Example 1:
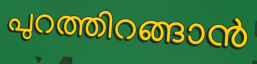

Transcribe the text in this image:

പുറത്തിറങ്ങാൻ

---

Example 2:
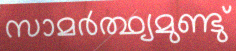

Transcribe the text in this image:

സാമർത്ഥ്യമുണ്ടു്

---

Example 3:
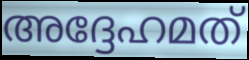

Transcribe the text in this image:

അദ്ദേഹമത്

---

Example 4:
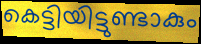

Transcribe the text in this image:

കെട്ടിയിട്ടുണ്ടാകും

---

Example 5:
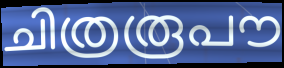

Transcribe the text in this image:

ചിത്രരൂപൗ